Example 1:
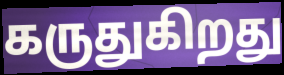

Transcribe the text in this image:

கருதுகிறது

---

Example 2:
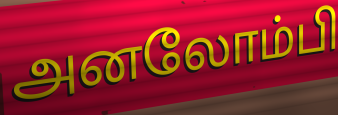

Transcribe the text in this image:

அனலோம்பி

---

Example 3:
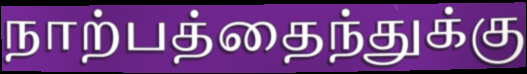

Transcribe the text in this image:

நாற்பத்தைந்துக்கு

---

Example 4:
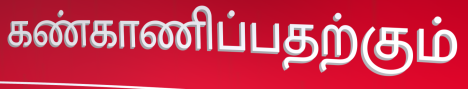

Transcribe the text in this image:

கண்காணிப்பதற்கும்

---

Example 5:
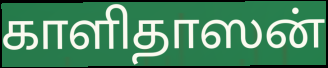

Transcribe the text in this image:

காளிதாஸன்